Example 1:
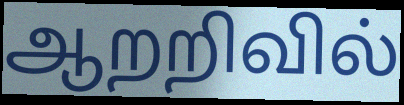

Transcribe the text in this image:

ஆறறிவில்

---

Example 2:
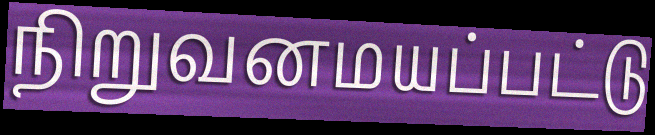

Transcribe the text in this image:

நிறுவனமயப்பட்டு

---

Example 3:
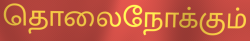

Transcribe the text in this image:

தொலைநோக்கும்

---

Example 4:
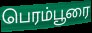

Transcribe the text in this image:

பெரம்பூரை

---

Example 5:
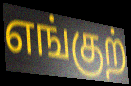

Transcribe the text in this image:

எங்குற்